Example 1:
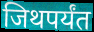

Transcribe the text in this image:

जिथपर्यंत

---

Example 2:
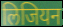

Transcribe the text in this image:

लिजियन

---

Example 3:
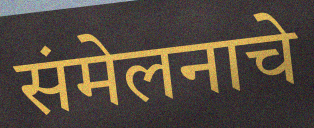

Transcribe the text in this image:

संमेलनाचे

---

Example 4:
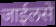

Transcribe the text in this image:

जाईलसे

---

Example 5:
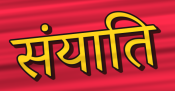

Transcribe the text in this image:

संयाति